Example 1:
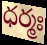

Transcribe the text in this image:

ధర్మః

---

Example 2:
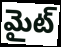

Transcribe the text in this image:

మైట్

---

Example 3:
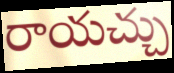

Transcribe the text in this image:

రాయచ్చు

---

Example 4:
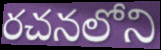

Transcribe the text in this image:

రచనలోని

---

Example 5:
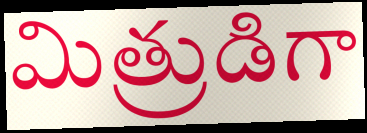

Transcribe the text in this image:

మిత్రుడిగా